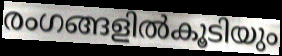
രംഗങ്ങളിൽകൂടിയും